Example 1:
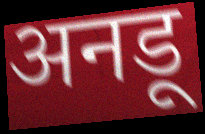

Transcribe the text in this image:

अनडू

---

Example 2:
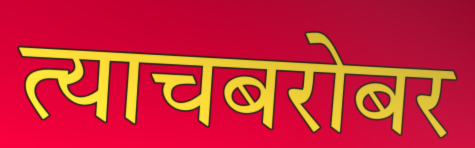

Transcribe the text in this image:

त्‍याचबरोबर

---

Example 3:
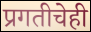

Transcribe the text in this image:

प्रगतीचेही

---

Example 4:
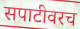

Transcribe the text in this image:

सपाटीवरच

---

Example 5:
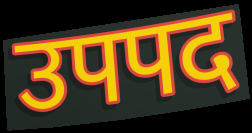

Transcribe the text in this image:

उपपद